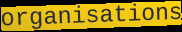
organisations